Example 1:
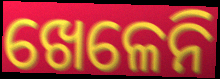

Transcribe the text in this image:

ଖେଳେନି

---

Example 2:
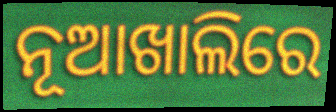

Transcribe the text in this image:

ନୂଆଖାଲିରେ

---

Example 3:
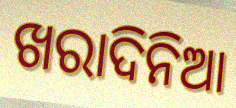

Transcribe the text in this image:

ଖରାଦିନିଆ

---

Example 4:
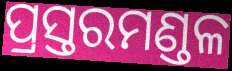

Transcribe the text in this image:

ପ୍ରସ୍ତରମଣ୍ଡଳ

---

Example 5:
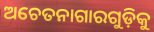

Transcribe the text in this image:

ଅଚେତନାଗାରଗୁଡ଼ିକୁ